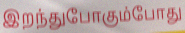
இறந்துபோகும்போது